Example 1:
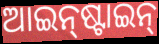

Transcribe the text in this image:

ଆଇନ୍‌ଷ୍ଟାଇନ୍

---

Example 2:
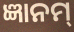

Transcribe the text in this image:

ଜ୍ଞାନମ୍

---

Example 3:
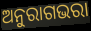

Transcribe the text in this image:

ଅନୁରାଗଭରା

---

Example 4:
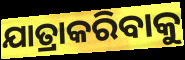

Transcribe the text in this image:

ଯାତ୍ରାକରିବାକୁ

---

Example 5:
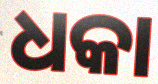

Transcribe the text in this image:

ଧକା